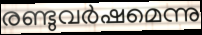
രണ്ടുവർഷമെന്നു